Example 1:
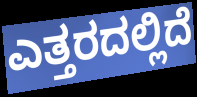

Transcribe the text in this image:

ಎತ್ತರದಲ್ಲಿದೆ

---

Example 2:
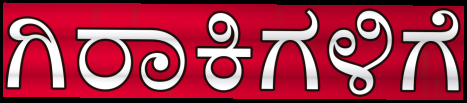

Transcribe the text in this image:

ಗಿರಾಕಿಗಳಿಗೆ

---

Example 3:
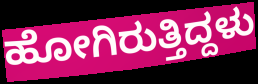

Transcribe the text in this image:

ಹೋಗಿರುತ್ತಿದ್ದಳು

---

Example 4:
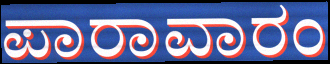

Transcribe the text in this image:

ಪಾರಾವಾರಂ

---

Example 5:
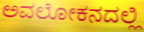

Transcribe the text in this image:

ಅವಲೋಕನದಲ್ಲಿ